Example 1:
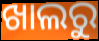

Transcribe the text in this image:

ଖାଲରୁ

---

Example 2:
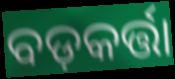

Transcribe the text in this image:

ବଡ଼କର୍ତ୍ତା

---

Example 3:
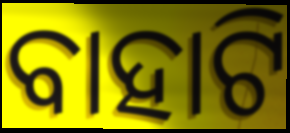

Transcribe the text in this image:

ବାହାଟି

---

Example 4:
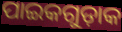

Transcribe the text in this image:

ପାଇକଗୁଡ଼ାକ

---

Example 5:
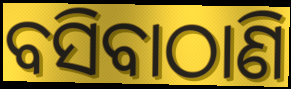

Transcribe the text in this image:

ବସିବାଠାଣି